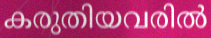
കരുതിയവരിൽ